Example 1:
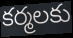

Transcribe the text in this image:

కర్మలకు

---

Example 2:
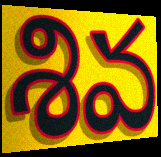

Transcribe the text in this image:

శివ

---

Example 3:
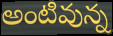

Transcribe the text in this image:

అంటివున్న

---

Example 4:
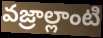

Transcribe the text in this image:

వజ్రాల్లాంటి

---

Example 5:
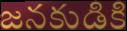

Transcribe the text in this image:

జనకుడికి